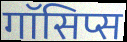
गॉसिप्स